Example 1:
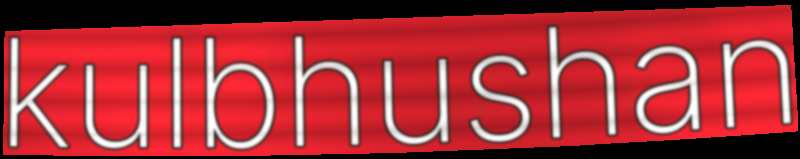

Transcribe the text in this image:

kulbhushan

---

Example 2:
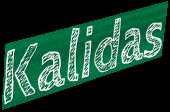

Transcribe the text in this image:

Kalidas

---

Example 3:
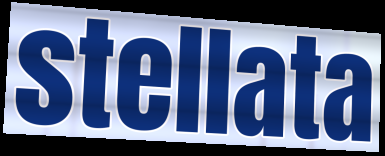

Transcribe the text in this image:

stellata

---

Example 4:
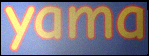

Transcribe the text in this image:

yama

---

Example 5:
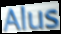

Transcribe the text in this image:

Alus